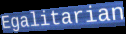
Egalitarian